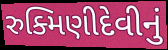
રુક્મિણીદેવીનું